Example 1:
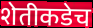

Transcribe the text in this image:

शेतीकडेच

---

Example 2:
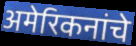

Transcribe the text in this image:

अमेरिकनांचे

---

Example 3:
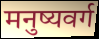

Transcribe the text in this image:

मनुष्यवर्ग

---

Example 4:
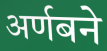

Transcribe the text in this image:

अर्णबने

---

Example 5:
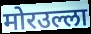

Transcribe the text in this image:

मोरउल्ला